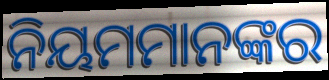
ନିୟମମାନଙ୍କର